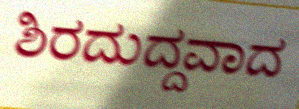
ಶಿರದುದ್ದವಾದ